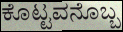
ಕೊಟ್ಟವನೊಬ್ಬ